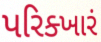
પરિક્ખારં